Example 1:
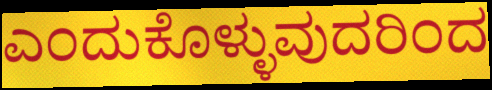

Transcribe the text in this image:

ಎಂದುಕೊಳ್ಳುವುದರಿಂದ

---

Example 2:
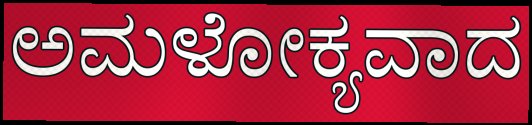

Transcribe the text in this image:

ಅಮಳೋಕ್ಯವಾದ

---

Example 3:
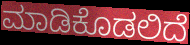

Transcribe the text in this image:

ಮಾಡಿಕೊಡಲಿದೆ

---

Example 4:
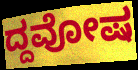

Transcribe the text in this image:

ದ್ದವೋಷ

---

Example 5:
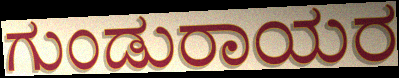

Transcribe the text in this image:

ಗುಂಡುರಾಯರ